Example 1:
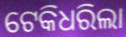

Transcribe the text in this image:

ଟେକିଧରିଲା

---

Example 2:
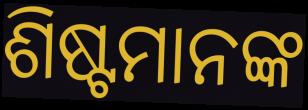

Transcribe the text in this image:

ଶିଷ୍ଟମାନଙ୍କ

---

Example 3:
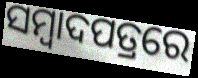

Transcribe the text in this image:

ସମ୍ୱାଦପତ୍ରରେ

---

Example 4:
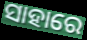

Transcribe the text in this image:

ସାହାରେ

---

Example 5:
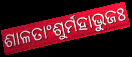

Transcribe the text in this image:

ଶାଳତାଂଶୁର୍ମହାଭୁଜଃ